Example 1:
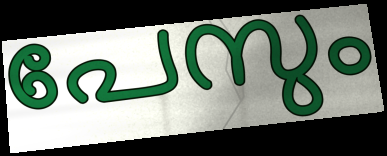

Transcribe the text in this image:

പേസും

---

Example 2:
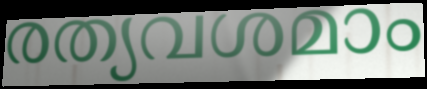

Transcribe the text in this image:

രത്യവശമാം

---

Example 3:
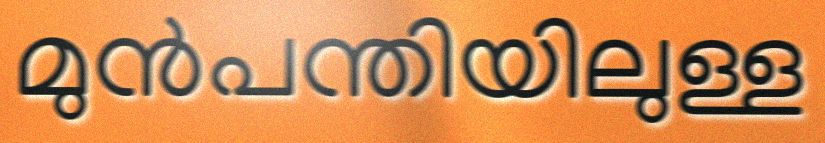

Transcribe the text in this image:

മുൻപന്തിയിലുള്ള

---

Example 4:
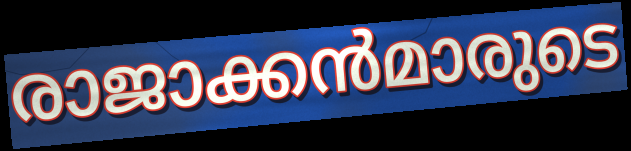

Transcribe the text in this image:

രാജാക്കൻമാരുടെ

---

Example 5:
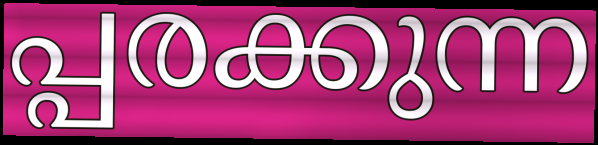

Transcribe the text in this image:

പ്പരക്കുന്ന